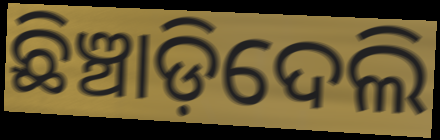
ଛିଞ୍ଚାଡ଼ିଦେଲି